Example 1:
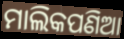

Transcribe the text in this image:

ମାଲିକପଣିଆ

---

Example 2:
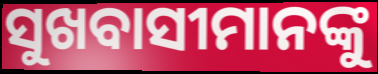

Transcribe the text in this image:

ସୁଖବାସୀମାନଙ୍କୁ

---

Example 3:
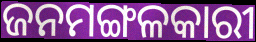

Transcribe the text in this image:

ଜନମଙ୍ଗଳକାରୀ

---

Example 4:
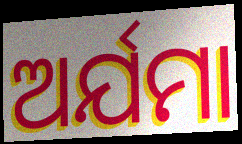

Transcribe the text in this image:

ଅର୍ଯମା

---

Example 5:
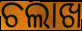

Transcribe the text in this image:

ଚଲାଖ